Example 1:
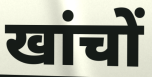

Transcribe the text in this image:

खांचों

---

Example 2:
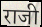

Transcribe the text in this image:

राजी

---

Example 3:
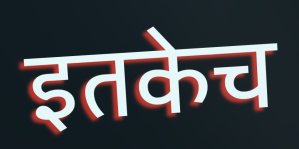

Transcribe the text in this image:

इतकेच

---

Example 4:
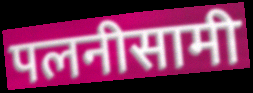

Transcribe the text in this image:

पलनीसामी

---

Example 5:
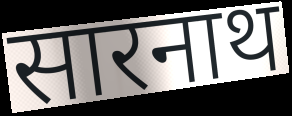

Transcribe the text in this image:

सारनाथ